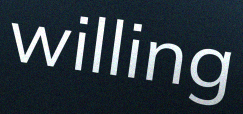
willing